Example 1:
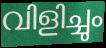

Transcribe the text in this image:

വിളിച്ചും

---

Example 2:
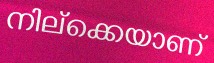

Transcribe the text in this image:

നില്ക്കെയാണ്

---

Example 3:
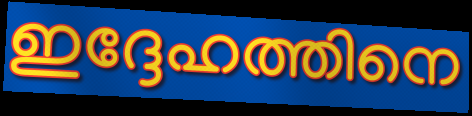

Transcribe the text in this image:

ഇദ്ദേഹത്തിനെ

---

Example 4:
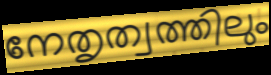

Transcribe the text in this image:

നേതൃത്വത്തിലും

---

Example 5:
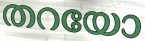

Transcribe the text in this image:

തറയോ